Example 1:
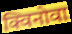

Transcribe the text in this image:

क्विनोवा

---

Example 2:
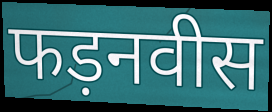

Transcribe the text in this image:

फड़नवीस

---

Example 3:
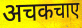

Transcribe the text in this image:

अचकचाए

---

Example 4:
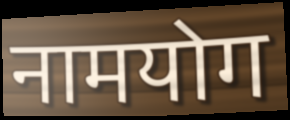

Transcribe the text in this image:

नामयोग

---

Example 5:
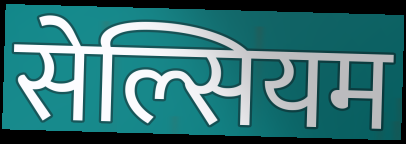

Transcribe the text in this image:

सेल्सियम